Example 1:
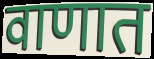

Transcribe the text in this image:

वाणात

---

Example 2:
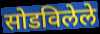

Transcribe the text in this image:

सोडविलेले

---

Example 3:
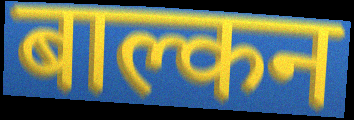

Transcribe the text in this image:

बाल्कन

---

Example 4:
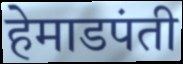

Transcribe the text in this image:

हेमाडपंती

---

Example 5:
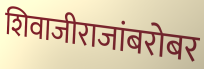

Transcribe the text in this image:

शिवाजीराजांबरोबर